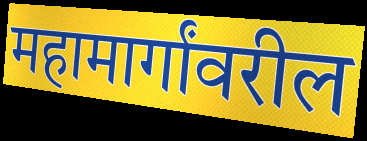
महामार्गांवरील